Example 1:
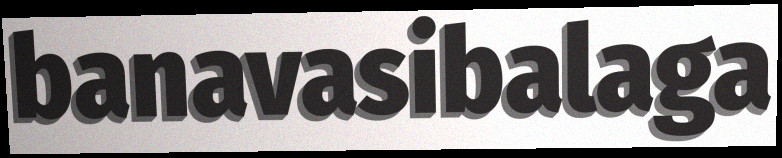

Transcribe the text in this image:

banavasibalaga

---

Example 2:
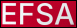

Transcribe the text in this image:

EFSA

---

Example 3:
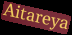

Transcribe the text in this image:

Aitareya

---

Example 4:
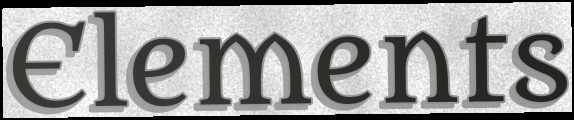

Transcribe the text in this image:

Elements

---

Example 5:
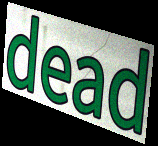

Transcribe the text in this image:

dead